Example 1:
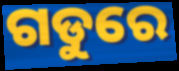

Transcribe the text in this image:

ଗଡୁରେ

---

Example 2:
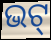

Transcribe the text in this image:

ଭଟ୍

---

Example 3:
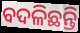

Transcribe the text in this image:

ବଦଳିଛନ୍ତି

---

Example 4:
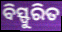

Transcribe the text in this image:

ବିସ୍ଫୁରିତ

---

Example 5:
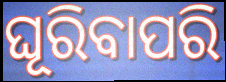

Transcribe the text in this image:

ଘୂରିବାପରି